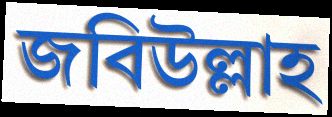
জবিউল্লাহ